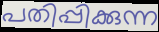
പതിപ്പിക്കുന്ന